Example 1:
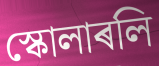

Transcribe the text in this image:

স্কোলাৰলি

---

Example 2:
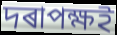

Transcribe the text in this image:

দৰাপক্ষই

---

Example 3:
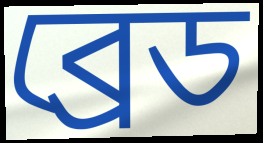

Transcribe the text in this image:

ব্ৰেড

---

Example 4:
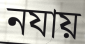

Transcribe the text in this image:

নযায়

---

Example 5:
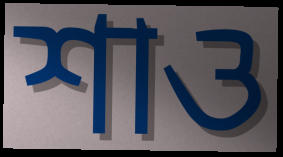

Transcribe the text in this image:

শাও